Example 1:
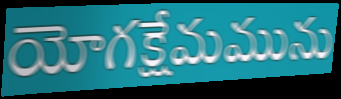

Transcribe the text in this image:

యోగక్షేమమును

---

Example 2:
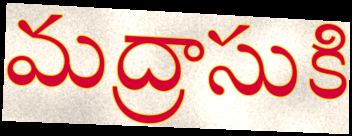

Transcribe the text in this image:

మద్రాసుకి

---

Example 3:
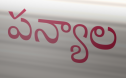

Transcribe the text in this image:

పన్యాల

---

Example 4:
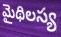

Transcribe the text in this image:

మైథిలస్య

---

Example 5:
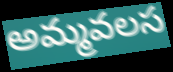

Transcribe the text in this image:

అమ్మవలస